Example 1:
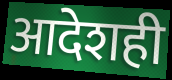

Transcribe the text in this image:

आदेशही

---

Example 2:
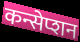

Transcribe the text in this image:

कन्सेप्शन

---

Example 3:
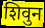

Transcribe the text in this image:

शिवुन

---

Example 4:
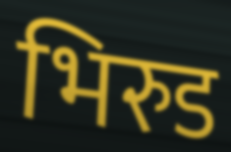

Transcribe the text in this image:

भिरुड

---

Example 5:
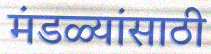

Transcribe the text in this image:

मंडळ्यांसाठी